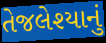
તેજલેશ્યાનું